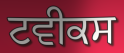
ਟਵੀਕਸ